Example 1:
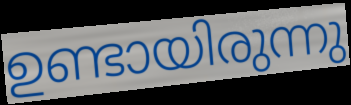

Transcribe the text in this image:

ഉണ്ടായിരുന്നു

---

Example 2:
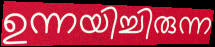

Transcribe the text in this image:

ഉന്നയിച്ചിരുന്ന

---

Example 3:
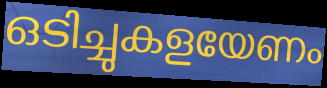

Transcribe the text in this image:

ഒടിച്ചുകളയേണം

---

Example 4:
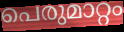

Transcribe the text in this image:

പെരുമാറ്റം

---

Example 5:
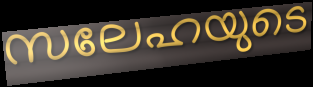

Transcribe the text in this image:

സലേഹയുടെ